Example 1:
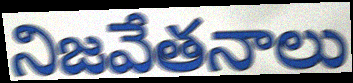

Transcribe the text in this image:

నిజవేతనాలు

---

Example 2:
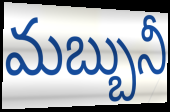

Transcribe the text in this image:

మబ్బునీ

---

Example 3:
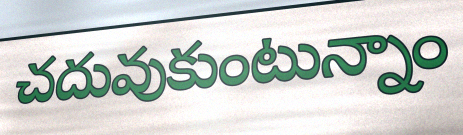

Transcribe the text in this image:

చదువుకుంటున్నాం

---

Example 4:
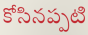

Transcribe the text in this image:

కోసినప్పటి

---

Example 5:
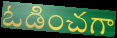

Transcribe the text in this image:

ఓడించగా